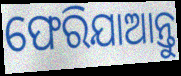
ଫେରିଯାଆନ୍ତୁ